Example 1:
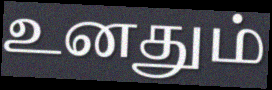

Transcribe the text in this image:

உனதும்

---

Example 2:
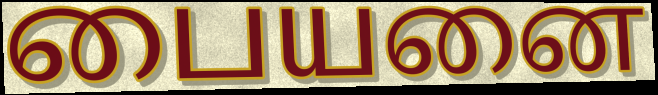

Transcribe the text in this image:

பையனை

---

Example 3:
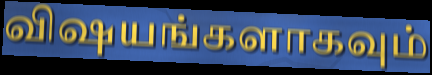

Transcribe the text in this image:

விஷயங்களாகவும்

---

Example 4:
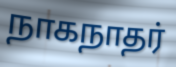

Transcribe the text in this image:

நாகநாதர்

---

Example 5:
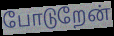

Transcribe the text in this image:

போடுறேன்